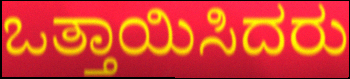
ಒತ್ತಾಯಿಸಿದರು